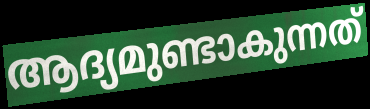
ആദ്യമുണ്ടാകുന്നത്